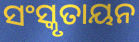
ସଂସ୍କୃତାୟନ